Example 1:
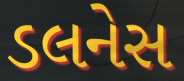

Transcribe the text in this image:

ડલનેસ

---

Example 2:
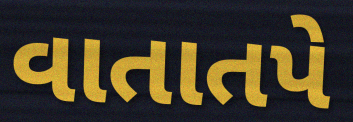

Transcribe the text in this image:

વાતાતપે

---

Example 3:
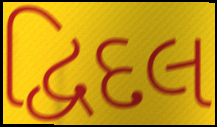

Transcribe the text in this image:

દ્વિદલ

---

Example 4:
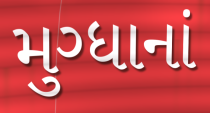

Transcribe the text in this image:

મુગ્ધાનાં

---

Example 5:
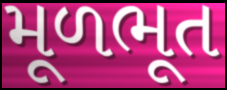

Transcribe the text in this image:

મૂળભૂત